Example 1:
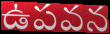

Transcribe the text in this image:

ఉపవన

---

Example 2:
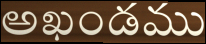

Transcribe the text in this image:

అఖండము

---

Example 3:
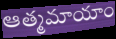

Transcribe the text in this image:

ఆత్మమాయాం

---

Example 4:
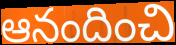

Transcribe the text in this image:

ఆనందించి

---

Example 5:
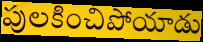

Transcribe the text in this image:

పులకించిపోయాడు